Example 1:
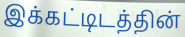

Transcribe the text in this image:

இக்கட்டிடத்தின்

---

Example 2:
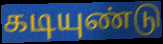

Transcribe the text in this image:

கடியுண்டு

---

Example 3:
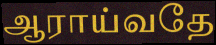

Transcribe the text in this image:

ஆராய்வதே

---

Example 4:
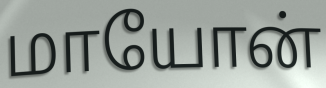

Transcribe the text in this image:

மாயோன்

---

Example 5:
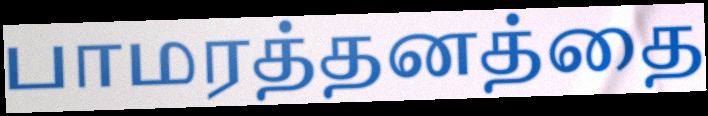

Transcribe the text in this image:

பாமரத்தனத்தை